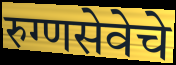
रुग्णसेवेचे